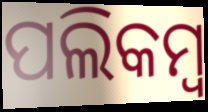
ପଲିକମ୍ବ